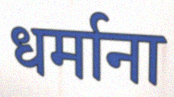
धर्माना